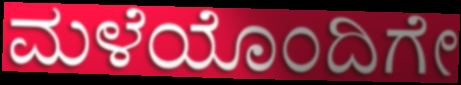
ಮಳೆಯೊಂದಿಗೇ